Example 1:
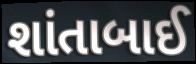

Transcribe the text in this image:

શાંતાબાઈ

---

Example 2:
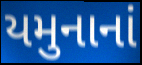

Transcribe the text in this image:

યમુનાનાં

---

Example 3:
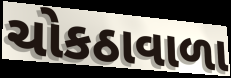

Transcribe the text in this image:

ચોકઠાવાળા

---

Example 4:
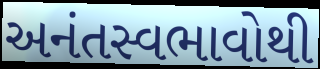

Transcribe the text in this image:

અનંતસ્વભાવોથી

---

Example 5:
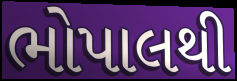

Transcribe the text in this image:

ભોપાલથી